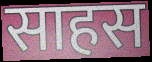
साहस